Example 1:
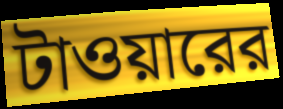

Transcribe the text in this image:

টাওয়ারের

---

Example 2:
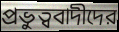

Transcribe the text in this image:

প্রভুত্ববাদীদের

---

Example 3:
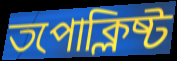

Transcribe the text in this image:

তপোক্লিষ্ট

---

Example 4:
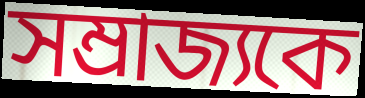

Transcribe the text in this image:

সম্রাজ্যকে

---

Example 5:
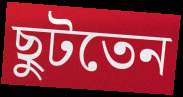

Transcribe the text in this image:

ছুটতেন